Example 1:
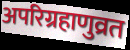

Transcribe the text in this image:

अपरिग्रहाणुव्रत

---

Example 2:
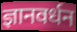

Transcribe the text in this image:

ज्ञानवर्धन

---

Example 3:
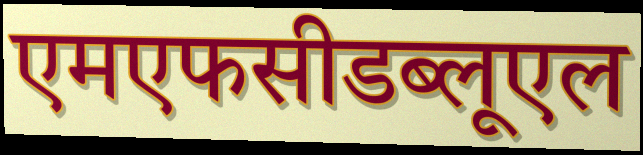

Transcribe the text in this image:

एमएफसीडब्‍लूएल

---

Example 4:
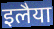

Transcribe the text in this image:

इलैया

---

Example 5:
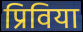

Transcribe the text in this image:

प्रिविया